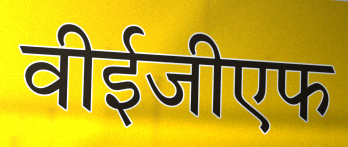
वीईजीएफ